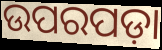
ଉପରପଡ଼ା